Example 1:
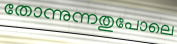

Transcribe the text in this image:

തോന്നുന്നതുപോലെ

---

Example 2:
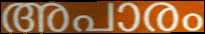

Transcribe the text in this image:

അപാരം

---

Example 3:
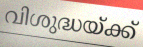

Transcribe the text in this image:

വിശുദ്ധയ്ക്ക്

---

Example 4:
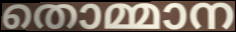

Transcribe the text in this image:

തൊമ്മാന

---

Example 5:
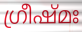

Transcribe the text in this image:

ഗ്രീഷ്മഃ